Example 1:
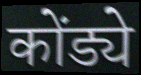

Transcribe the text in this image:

कोंड्ये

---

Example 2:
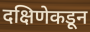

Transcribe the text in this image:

दक्षिणेकडून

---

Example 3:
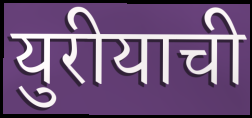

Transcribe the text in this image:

युरीयाची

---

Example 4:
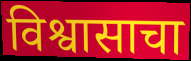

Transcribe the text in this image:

विश्वासाचा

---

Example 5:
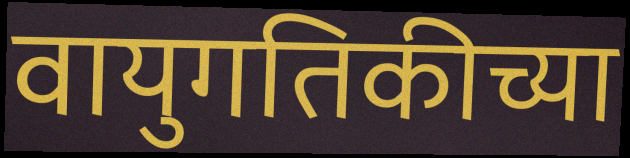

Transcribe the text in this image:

वायुगतिकीच्या